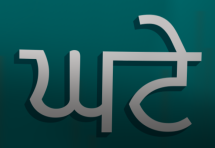
ਘਟੇ